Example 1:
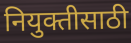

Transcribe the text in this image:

नियुक्तीसाठी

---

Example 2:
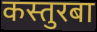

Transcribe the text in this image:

कस्तुरबा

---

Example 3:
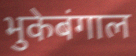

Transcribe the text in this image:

भुकेबंगाल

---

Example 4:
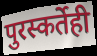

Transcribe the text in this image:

पुरस्कर्तेही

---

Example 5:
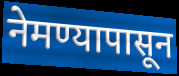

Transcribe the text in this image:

नेमण्यापासून